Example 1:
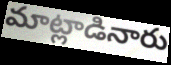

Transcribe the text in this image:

మాట్లాడినారు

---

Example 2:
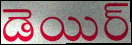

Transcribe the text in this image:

డెయిర్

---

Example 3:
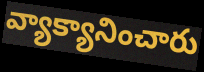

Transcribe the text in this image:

వ్యాక్యానించారు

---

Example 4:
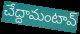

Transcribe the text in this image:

చేద్దామంటావ్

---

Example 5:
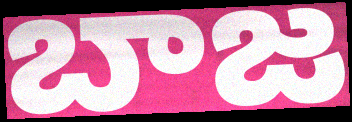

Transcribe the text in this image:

బాజ